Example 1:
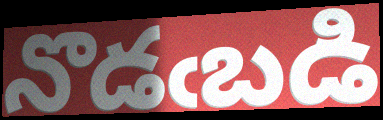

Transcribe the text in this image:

నొడఁబడి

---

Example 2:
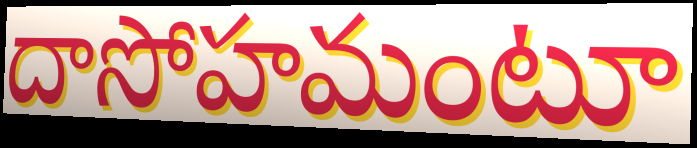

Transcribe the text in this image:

దాసోహమంటూ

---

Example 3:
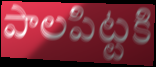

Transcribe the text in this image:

పాలపిట్టకి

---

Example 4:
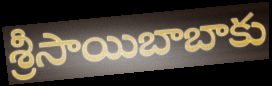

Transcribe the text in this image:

శ్రీసాయిబాబాకు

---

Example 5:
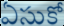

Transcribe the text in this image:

ఏసుకో